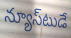
న్యూస్‌టుడే